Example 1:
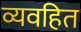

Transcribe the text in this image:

व्यवहित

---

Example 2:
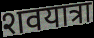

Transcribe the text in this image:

शवयात्रा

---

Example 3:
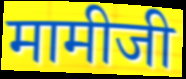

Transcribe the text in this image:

मामीजी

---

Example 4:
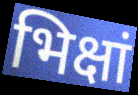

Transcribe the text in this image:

भिक्षां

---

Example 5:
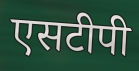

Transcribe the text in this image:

एसटीपी